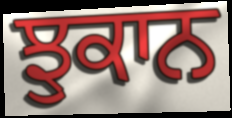
ਝੁਕਾਨ